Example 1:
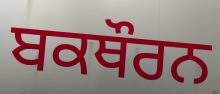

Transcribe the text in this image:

ਬਕਥੌਰਨ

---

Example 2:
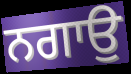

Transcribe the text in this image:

ਨਗਾਉ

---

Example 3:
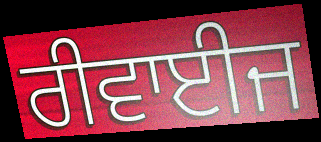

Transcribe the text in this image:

ਰੀਵਾਈਜ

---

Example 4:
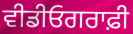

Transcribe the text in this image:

ਵੀਡੀਓਗਰਾਫ਼ੀ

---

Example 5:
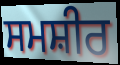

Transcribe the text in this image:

ਸਮਸ਼ੀਰ